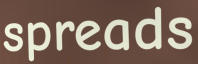
spreads